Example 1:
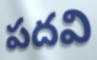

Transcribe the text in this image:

పదవి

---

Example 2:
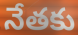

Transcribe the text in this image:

నేతకు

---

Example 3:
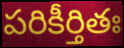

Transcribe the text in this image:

పరికీర్తితః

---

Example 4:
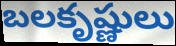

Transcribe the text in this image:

బలకృష్ణులు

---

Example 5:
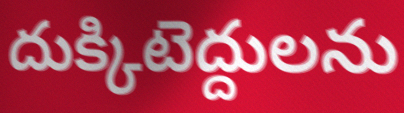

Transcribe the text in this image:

దుక్కిటెద్దులను